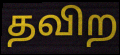
தவிற